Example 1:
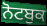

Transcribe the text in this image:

ਨੋਟਬੁਕ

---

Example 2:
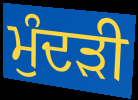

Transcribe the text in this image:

ਮੁੰਦੜੀ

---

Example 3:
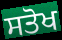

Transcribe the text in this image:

ਸਤੋਖ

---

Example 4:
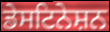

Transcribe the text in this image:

ਡੇਸਟਿਨੇਸ਼ਨ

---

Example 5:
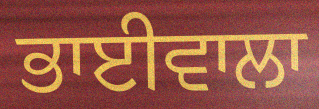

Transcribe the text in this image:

ਭਾਈਵਾਲਾ